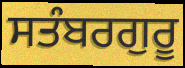
ਸਤੰਬਰਗੁਰੂ